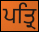
ਪਤ੍ਰਿ